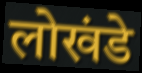
लोखंडे